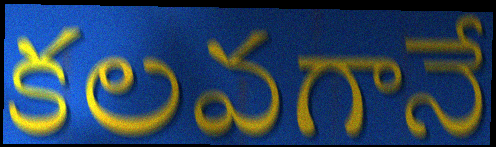
కలవగానే